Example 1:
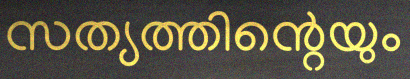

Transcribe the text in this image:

സത്യത്തിന്റെയും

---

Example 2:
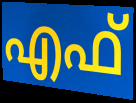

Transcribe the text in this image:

എഫ്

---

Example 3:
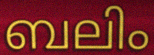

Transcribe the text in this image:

ബലിം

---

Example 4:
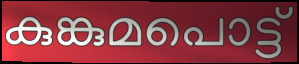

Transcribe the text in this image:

കുങ്കുമപൊട്ട്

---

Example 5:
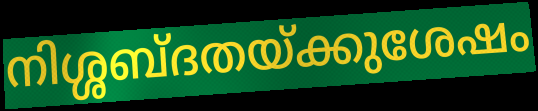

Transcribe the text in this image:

നിശ്ശബ്ദതയ്ക്കുശേഷം